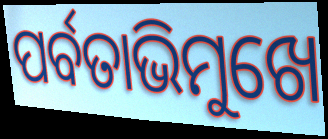
ପର୍ବତାଭିମୁଖେ